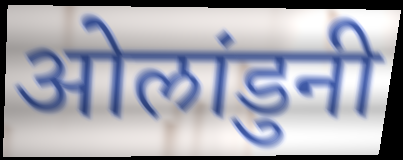
ओलांडुनी